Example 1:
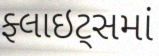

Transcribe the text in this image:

ફ્લાઇટ્સમાં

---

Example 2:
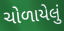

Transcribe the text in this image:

ચોળાયેલું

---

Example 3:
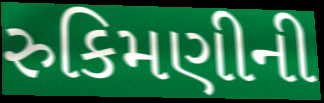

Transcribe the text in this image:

રુકિમણીની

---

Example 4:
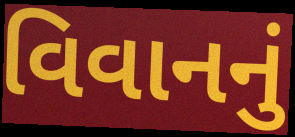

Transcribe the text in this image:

વિવાનનું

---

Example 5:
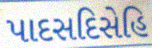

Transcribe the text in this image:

પાદસદિસેહિ